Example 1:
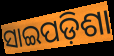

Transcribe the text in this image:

ସାଇପଡ଼ିଶା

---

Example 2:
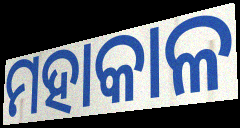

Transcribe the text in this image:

ମହାକାଳ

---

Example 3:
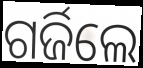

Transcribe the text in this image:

ଗର୍ଜିଲେ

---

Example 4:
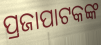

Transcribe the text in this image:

ପ୍ରଜାପାଟକଙ୍କ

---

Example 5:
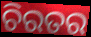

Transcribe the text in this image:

ଚିରତର